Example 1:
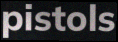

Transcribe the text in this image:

pistols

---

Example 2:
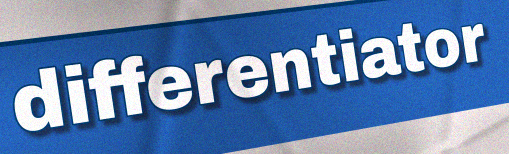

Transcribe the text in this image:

differentiator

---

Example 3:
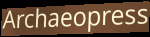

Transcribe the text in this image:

Archaeopress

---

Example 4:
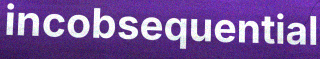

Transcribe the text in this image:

incobsequential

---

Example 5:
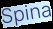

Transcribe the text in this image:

Spina